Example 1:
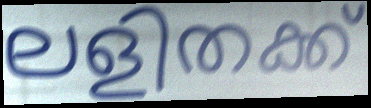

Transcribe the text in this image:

ലളിതക്ക്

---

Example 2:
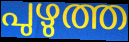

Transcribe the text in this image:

പുഴുത്ത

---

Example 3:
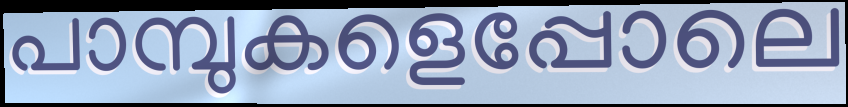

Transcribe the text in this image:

പാമ്പുകളെപ്പോലെ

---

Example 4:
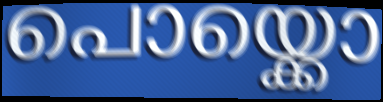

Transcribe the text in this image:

പൊയ്ക്കൊ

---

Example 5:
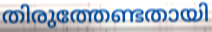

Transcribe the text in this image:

തിരുത്തേണ്ടതായി